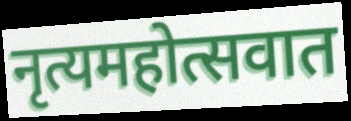
नृत्यमहोत्सवात